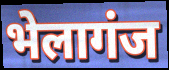
भेलागंज